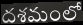
దశమంలో